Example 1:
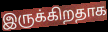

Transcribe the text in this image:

இருக்கிறதாக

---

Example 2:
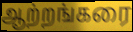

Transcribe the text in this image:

ஆற்றங்கரை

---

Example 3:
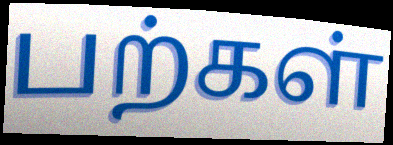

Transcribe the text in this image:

பற்கள்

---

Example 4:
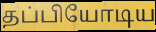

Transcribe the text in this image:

தப்பியோடிய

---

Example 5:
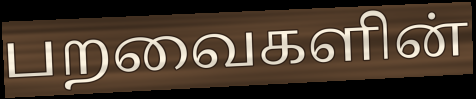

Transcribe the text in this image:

பறவைகளின்